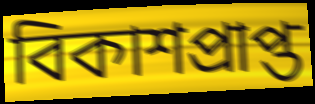
বিকাশপ্রাপ্ত